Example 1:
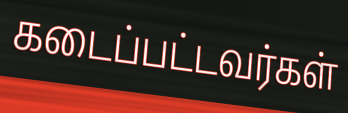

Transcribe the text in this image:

கடைப்பட்டவர்கள்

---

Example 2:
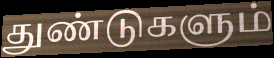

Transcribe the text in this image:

துண்டுகளும்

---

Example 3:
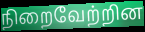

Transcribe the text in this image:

நிறைவேற்றின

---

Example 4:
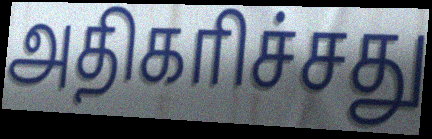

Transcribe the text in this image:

அதிகரிச்சது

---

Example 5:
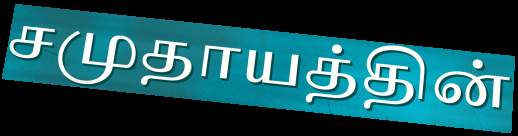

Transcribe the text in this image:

சமுதாயத்தின்